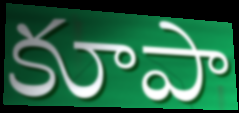
కూపా